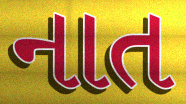
નાત